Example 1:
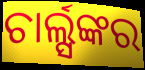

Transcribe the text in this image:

ଚାର୍ଲ୍ସଙ୍କର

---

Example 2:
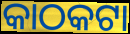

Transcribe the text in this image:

କାଠକଟା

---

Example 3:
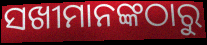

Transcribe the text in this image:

ସଖୀମାନଙ୍କଠାରୁ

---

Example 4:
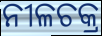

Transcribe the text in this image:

ନୀଳଚକ୍ର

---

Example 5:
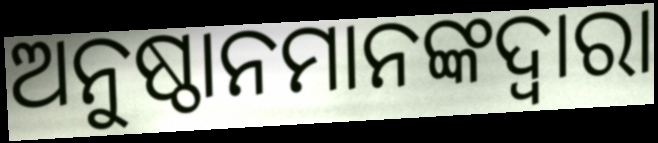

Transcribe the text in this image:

ଅନୁଷ୍ଠାନମାନଙ୍କଦ୍ଵାରା